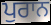
ਪੁਰਾਨ